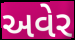
અવેર